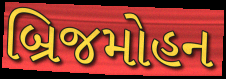
બ્રિજમોહન